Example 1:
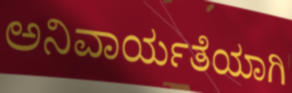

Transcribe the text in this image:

ಅನಿವಾರ್ಯತೆಯಾಗಿ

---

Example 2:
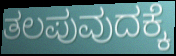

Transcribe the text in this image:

ತಲಪುವುದಕ್ಕೆ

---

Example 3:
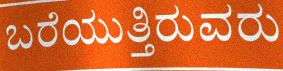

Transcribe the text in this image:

ಬರೆಯುತ್ತಿರುವರು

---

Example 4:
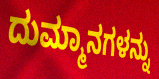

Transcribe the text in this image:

ದುಮ್ಮಾನಗಳನ್ನು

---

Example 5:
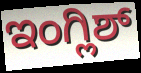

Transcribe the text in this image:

ಇಂಗ್ಲಿಶ್